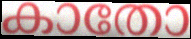
കാതോ